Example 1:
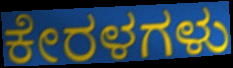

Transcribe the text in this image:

ಕೇರಳಗಳು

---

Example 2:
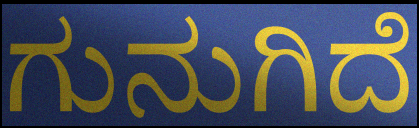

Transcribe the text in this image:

ಗುನುಗಿದೆ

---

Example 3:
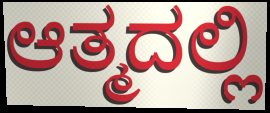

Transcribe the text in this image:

ಆತ್ಮದಲ್ಲಿ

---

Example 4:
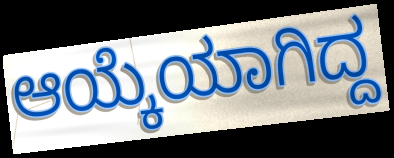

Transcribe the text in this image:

ಆಯ್ಕೆಯಾಗಿದ್ದ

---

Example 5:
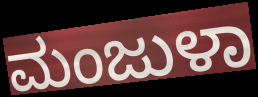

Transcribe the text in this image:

ಮಂಜುಳಾ